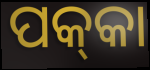
ପକ୍‌କା